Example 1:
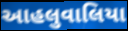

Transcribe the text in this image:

આહલુવાલિયા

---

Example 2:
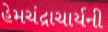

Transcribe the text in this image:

હેમચંદ્રાચાર્યની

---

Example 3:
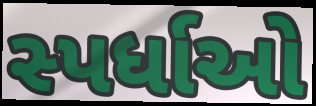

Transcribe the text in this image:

સ્પર્ધાઓ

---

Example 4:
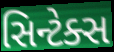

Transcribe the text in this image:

સિન્ટેક્સ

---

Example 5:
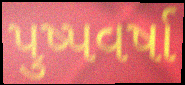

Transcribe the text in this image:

પુષ્પવર્ષા